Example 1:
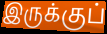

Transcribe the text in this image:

இருக்குப்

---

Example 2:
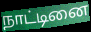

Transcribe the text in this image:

நாட்டினை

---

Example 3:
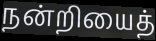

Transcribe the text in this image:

நன்றியைத்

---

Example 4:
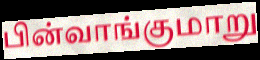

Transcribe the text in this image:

பின்வாங்குமாறு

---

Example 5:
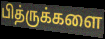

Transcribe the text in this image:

பித்ருக்களை